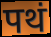
पथं